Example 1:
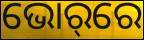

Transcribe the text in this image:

ଭୋର୍‌ରେ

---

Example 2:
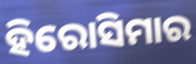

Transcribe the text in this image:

ହିରୋସିମାର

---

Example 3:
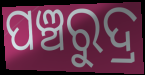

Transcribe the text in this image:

ପଞ୍ଚରୁଦ୍ର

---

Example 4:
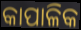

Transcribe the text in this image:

କାପାଳିକ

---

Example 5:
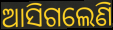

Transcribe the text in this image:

ଆସିଗଲେଣି